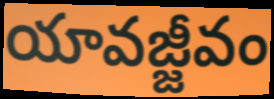
యావజ్జీవం